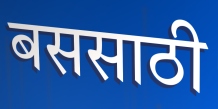
बससाठी